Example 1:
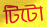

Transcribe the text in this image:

টিটো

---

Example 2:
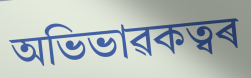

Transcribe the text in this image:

অভিভাৱকত্বৰ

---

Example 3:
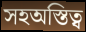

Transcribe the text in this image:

সহঅস্তিত্ব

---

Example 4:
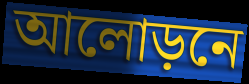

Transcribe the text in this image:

আলোড়নে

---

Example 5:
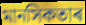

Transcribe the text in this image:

মানসিকতাৰ